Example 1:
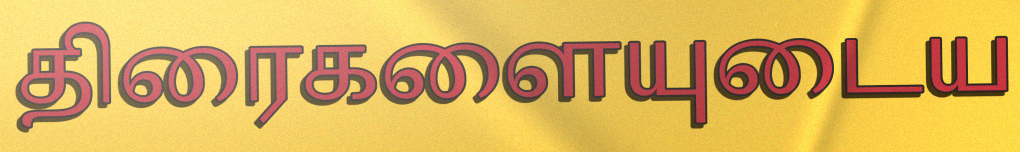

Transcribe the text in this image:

திரைகளையுடைய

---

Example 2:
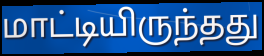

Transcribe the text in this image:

மாட்டியிருந்தது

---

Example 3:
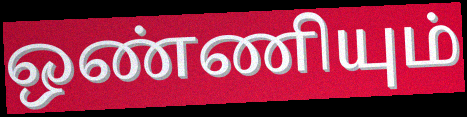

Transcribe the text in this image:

ஒண்ணியும்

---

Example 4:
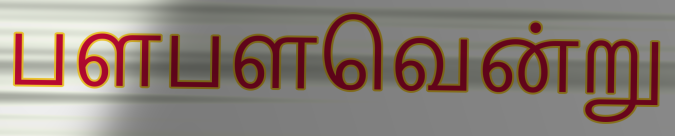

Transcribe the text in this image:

பளபளவென்று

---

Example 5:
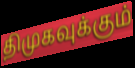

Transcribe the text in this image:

திமுகவுக்கும்